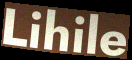
Lihile